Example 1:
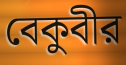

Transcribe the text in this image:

বেকুবীর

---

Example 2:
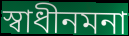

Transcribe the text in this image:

স্বাধীনমনা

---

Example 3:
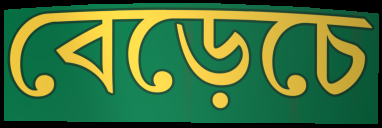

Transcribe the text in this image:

বেড়েচে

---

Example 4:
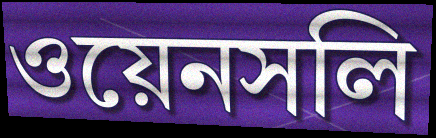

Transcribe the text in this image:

ওয়েনসলি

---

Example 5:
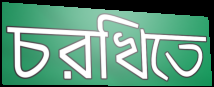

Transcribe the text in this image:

চরখিতে